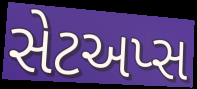
સેટઅપ્સ